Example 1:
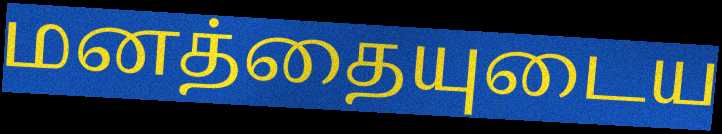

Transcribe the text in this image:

மனத்தையுடைய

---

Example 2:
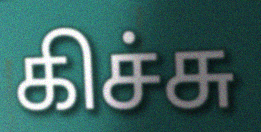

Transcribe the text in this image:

கிச்சு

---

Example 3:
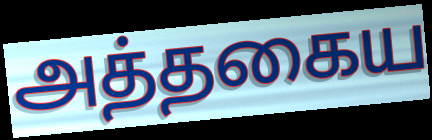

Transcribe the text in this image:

அத்தகைய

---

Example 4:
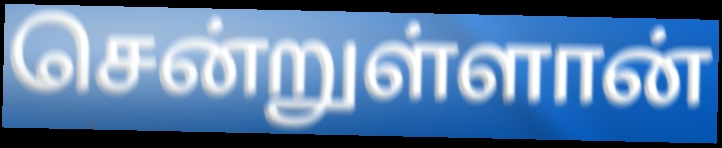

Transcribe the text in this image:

சென்றுள்ளான்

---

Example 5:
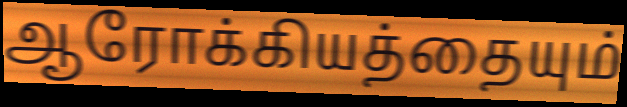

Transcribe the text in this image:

ஆரோக்கியத்தையும்